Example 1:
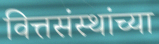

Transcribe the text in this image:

वित्तसंस्थांच्या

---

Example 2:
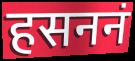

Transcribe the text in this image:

हसननं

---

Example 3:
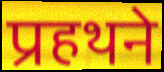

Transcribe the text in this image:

प्रहथने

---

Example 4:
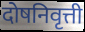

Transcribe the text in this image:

दोषनिवृत्ती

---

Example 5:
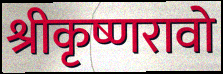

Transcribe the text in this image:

श्रीकृष्णरावो